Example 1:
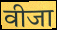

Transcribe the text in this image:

वीजा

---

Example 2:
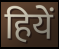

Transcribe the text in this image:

हियें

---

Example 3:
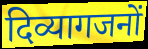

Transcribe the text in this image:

दिव्यागजनों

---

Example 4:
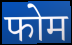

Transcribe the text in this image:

फोम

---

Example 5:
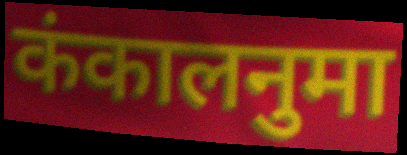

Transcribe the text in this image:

कंकालनुमा